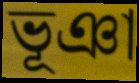
ভূঞা